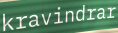
kravindrar